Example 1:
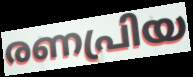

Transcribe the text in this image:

രണപ്രിയ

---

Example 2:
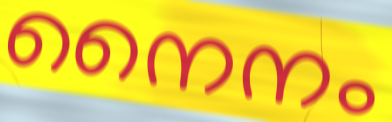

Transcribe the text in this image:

നൈനം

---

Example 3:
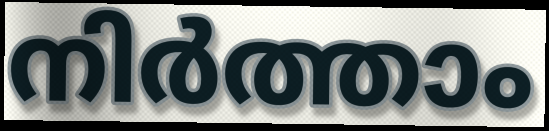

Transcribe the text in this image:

നിർത്താം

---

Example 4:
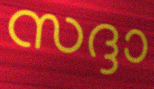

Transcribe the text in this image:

സദ്ദാ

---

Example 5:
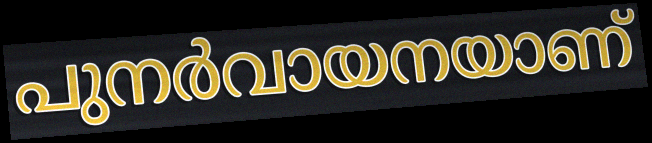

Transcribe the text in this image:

പുനർവായനയാണ്